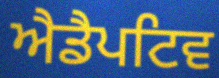
ਐਡੈਪਟਿਵ